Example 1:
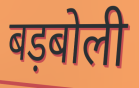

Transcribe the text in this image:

बड़बोली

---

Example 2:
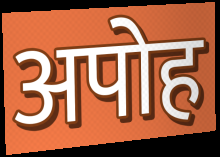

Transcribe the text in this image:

अपोह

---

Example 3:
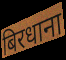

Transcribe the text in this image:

बिरधाना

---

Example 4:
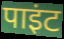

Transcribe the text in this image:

पाइंट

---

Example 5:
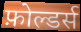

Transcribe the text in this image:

फ़ोल्डर्स